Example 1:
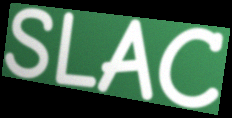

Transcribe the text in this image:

SLAC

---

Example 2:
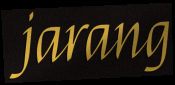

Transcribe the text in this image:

jarang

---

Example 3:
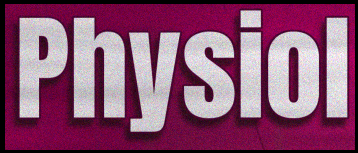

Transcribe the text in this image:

Physiol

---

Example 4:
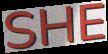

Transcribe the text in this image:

SHE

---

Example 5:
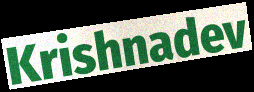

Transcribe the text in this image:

Krishnadev